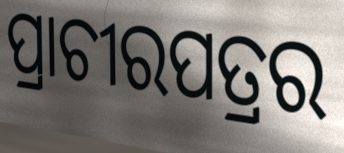
ପ୍ରାଚୀରପତ୍ରର